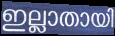
ഇല്ലാതായി